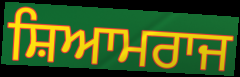
ਸ਼ਿਆਮਰਾਜ